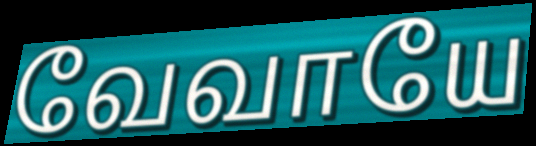
வேவாயே